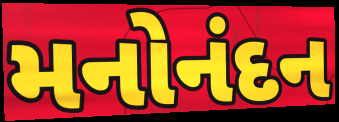
મનોનંદન